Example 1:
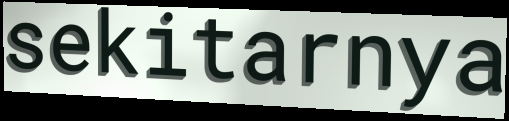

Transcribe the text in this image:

sekitarnya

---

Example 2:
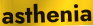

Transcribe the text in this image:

asthenia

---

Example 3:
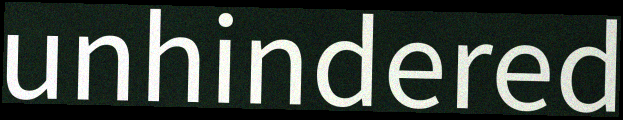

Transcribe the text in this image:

unhindered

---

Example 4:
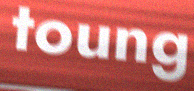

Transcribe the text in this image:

toung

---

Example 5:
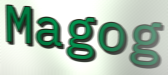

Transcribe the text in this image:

Magog